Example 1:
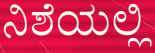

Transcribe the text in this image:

ನಿಶೆಯಲ್ಲಿ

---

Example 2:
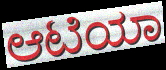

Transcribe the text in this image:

ಆಟೆಯಾ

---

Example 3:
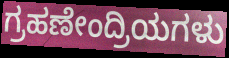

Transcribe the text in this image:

ಗ್ರಹಣೇಂದ್ರಿಯಗಳು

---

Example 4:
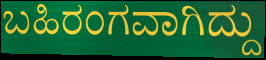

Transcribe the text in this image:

ಬಹಿರಂಗವಾಗಿದ್ದು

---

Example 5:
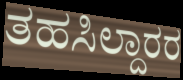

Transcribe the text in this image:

ತಹಸಿಲ್ದಾರರ